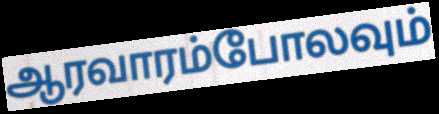
ஆரவாரம்போலவும்